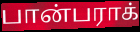
பான்பராக்